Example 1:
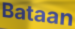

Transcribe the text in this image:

Bataan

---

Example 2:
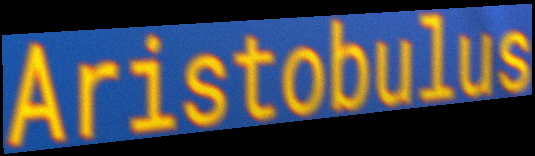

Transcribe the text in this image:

Aristobulus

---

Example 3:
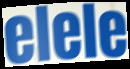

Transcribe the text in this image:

elele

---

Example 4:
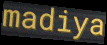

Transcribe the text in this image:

madiya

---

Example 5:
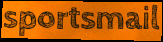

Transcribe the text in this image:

sportsmail